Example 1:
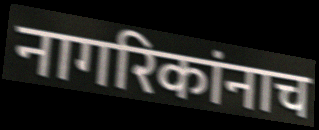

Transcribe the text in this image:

नागरिकांनाच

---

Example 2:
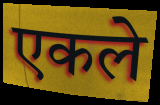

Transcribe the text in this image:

एकले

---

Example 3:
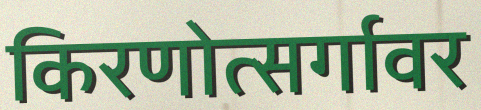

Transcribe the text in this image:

किरणोत्सर्गावर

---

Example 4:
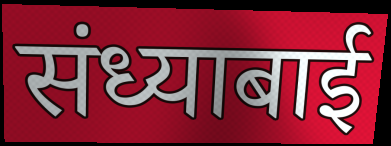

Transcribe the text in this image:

संध्याबाई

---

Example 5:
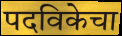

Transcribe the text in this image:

पदविकेचा